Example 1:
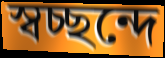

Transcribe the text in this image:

স্বচ্ছন্দে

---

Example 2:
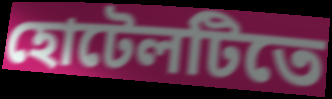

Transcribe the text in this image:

হোটেলটিতে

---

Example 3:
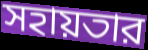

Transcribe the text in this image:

সহায়তার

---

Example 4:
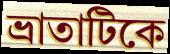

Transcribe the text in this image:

ভ্রাতাটিকে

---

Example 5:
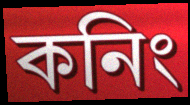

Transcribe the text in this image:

কনিং